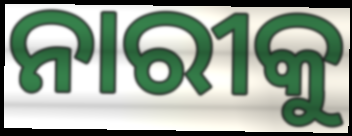
ନାରୀକୁ